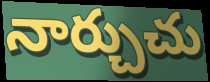
నార్చుచు